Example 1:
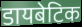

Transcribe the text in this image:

डायबेटिक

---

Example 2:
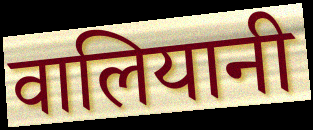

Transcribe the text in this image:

वालियानी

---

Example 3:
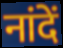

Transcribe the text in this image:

नांदें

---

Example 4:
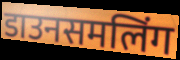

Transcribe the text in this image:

डाउनसमलिंग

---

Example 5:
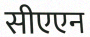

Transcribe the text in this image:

सीएएन